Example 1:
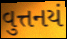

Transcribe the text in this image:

વુત્તનયં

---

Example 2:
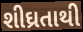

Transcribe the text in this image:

શીઘ્રતાથી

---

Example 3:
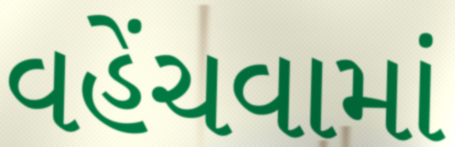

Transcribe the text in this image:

વહેંચવામાં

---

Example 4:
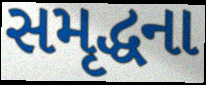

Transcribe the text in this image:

સમૃદ્ધના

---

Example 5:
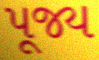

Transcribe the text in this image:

પૂજ્ય